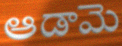
ఆడామె